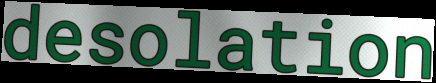
desolation